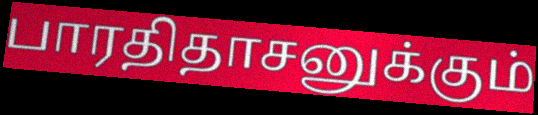
பாரதிதாசனுக்கும்